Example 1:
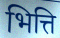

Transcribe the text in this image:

भित्ति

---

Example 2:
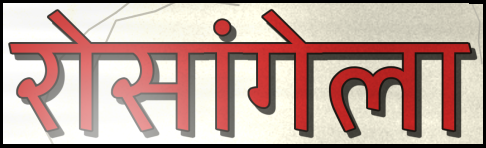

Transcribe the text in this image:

रोसांगेला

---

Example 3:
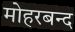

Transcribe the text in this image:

मोहरबन्द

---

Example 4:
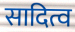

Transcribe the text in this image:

सादित्व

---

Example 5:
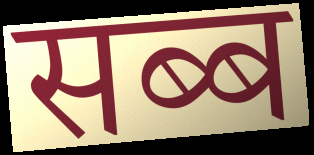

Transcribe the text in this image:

सब्ब